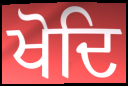
ਖੋਦਿ